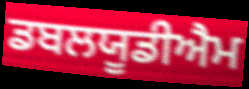
ਡਬਲਯੂਡੀਐਮ